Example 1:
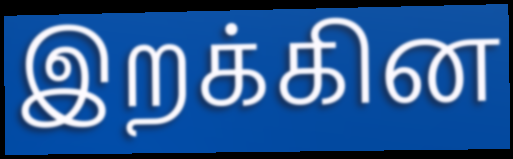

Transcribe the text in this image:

இறக்கின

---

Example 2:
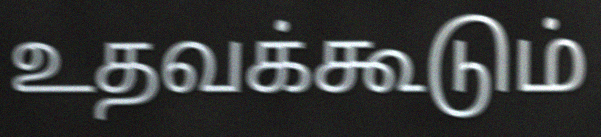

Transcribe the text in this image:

உதவக்கூடும்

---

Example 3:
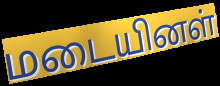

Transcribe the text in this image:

மடையினள்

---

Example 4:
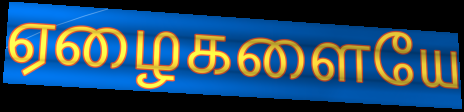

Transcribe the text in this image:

ஏழைகளையே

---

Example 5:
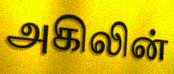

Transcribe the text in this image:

அகிலின்